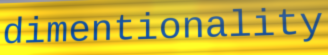
dimentionality